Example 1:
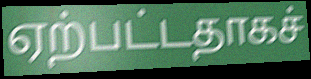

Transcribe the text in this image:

ஏற்பட்டதாகச்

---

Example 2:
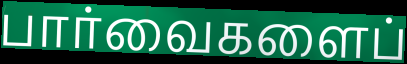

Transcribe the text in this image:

பார்வைகளைப்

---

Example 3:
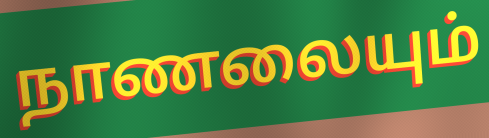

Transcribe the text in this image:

நாணலையும்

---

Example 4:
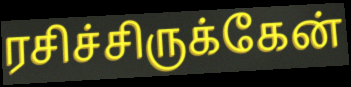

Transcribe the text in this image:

ரசிச்சிருக்கேன்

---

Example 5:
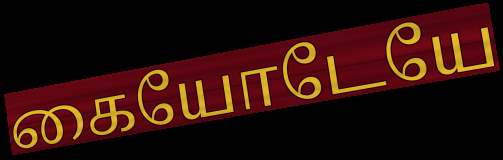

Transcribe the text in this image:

கையோடேயே